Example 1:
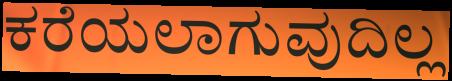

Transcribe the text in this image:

ಕರೆಯಲಾಗುವುದಿಲ್ಲ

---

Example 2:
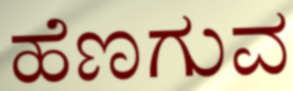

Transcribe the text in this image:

ಹೆಣಗುವ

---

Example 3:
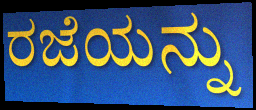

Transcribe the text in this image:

ರಜೆಯನ್ನು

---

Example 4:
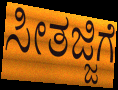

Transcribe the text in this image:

ಸೀತಜ್ಜಿಗೆ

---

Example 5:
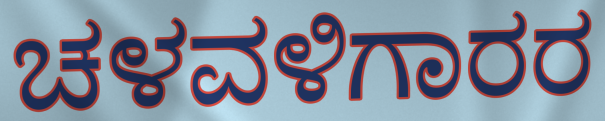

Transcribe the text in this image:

ಚಳವಳಿಗಾರರ